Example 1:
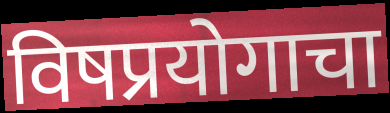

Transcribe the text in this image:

विषप्रयोगाचा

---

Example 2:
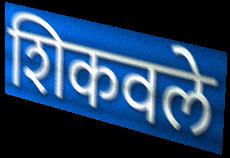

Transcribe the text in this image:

शिकवले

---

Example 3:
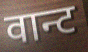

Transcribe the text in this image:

वान्ट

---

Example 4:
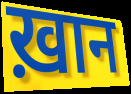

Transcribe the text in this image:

ख़ान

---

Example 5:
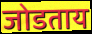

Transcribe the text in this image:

जोडताय